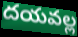
దయవల్ల